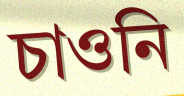
চাওনি